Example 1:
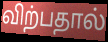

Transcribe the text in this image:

விற்பதால்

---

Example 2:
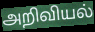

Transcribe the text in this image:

அறிவியல்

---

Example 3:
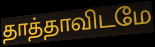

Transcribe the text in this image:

தாத்தாவிடமே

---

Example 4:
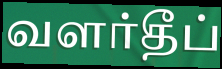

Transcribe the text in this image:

வளர்தீப்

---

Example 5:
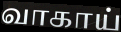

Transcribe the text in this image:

வாகாய்